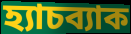
হ্যাচব্যাক